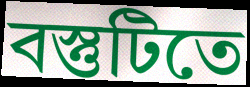
বস্তুটিতে